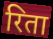
रिता